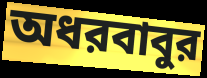
অধরবাবুর